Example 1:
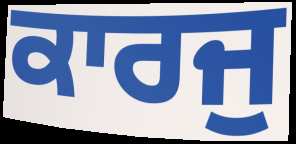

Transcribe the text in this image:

ਕਾਰਜੁ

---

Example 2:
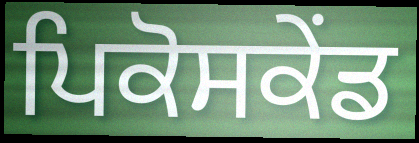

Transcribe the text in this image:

ਪਿਕੋਸਕੇਂਡ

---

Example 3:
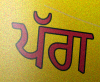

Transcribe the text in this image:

ਪੱਗ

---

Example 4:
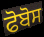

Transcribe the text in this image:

ਫੋਬੋਸ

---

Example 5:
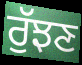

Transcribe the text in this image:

ਰੁੱਝਣ